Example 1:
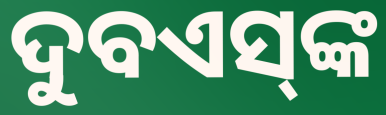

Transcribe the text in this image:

ଦୁବଏସ୍‌ଙ୍କ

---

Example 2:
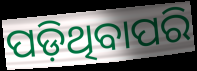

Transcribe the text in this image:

ପଡ଼ିଥିବାପରି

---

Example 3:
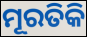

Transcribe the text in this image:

ମୂରତିକି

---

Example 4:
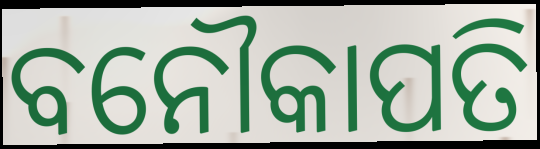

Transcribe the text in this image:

ବନୌକାପତି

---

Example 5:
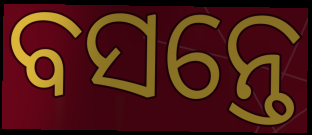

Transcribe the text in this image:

ବସନ୍ତେ